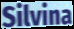
Silvina